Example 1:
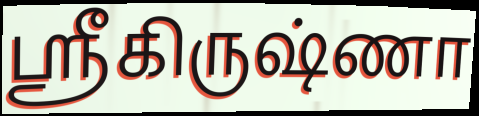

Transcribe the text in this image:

ஸ்ரீகிருஷ்ணா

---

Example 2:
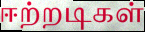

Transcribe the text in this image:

ஈற்றடிகள்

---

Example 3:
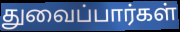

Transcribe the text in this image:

துவைப்பார்கள்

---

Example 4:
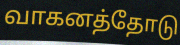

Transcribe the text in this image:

வாகனத்தோடு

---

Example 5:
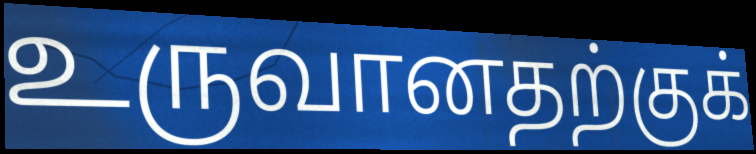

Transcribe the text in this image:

உருவானதற்குக்